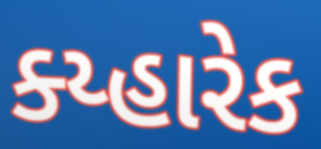
ક્ય્હારેક